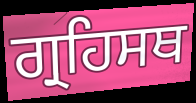
ਗ੍ਰਹਿਸਥ